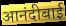
आनंदीबाई